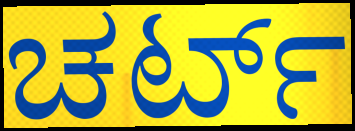
ಚರ್ಟ್